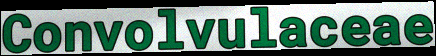
Convolvulaceae